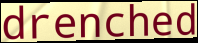
drenched